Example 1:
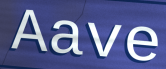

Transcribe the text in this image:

Aave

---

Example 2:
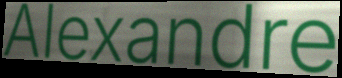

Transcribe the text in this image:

Alexandre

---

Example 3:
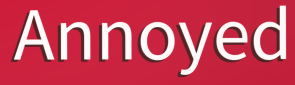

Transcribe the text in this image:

Annoyed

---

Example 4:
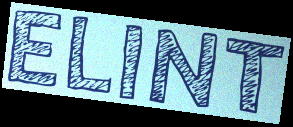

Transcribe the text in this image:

ELINT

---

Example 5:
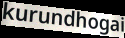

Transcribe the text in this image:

kurundhogai